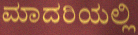
ಮಾದರಿಯಲ್ಲಿ